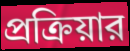
প্রক্রিয়ার